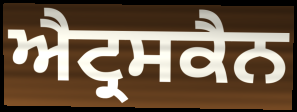
ਐਟ੍ਰਸਕੈਨ